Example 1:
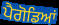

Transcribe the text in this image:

ਪੈਗੋਡਿਆਂ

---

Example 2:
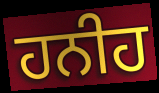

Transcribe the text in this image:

ਹਨੀਹ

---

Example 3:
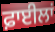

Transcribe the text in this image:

ਫ਼ਾਈਲਾਂ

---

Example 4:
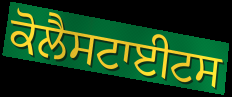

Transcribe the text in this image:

ਕੋਲੈਸਟਾਈਟਸ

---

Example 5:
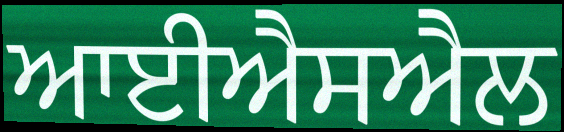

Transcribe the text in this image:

ਆਈਐਸਐਲ